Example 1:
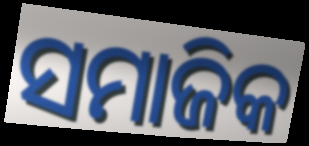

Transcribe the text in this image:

ସମାଜିକ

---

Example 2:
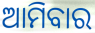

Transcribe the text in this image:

ଆମିବାର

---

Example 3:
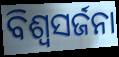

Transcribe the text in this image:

ବିଶ୍ଵସର୍ଜନା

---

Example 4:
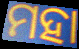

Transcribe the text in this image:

ମହା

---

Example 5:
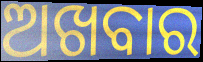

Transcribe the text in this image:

ଅଖବାର